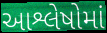
આશ્લેષોમાં